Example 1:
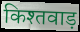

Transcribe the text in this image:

किश्तवाड़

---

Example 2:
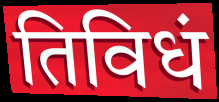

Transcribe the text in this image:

तिविधं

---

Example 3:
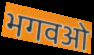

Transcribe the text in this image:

भगवओ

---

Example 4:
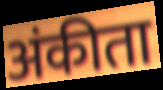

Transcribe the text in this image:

अंकीता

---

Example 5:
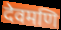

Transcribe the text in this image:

देवमणि